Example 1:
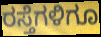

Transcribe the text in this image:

ರಸ್ತೆಗಳಿಗೂ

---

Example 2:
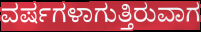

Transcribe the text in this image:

ವರ್ಷಗಳಾಗುತ್ತಿರುವಾಗ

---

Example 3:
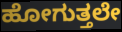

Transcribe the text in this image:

ಹೋಗುತ್ತಲೇ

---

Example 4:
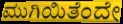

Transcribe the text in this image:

ಮುಗಿಯಿತೆಂದೇ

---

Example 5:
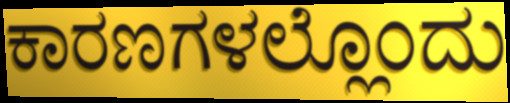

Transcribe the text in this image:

ಕಾರಣಗಳಲ್ಲೊಂದು